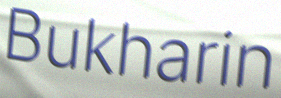
Bukharin